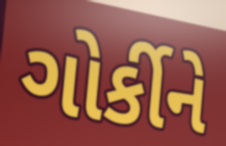
ગોર્કીને